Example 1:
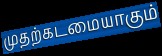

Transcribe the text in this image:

முதற்கடமையாகும்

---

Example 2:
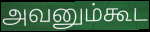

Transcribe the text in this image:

அவனும்கூட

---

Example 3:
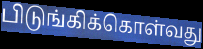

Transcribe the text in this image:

பிடுங்கிக்கொள்வது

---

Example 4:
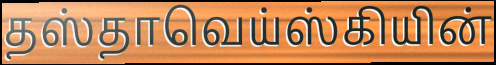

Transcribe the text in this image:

தஸ்தாவெய்ஸ்கியின்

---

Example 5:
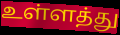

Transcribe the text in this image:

உள்ளத்து